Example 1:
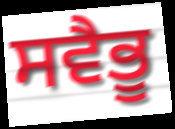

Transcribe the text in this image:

ਸਵੈਭੂ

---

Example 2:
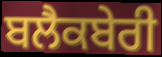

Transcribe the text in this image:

ਬਲੈਕਬੇਰੀ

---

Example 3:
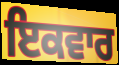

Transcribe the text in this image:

ਇਕਵਾਰ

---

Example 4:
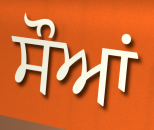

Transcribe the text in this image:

ਸੌਆਂ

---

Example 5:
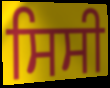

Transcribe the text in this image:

ਸਿਸੀ